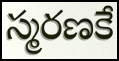
స్మరణకే